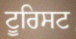
ਟੂਰਿਸਟ